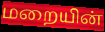
மறையின்